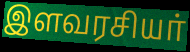
இளவரசியர்